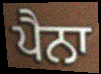
ਪੈਨਾ